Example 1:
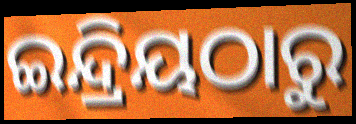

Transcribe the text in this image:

ଇନ୍ଦ୍ରିୟଠାରୁ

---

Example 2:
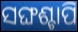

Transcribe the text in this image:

ସଙ୍ଘଶ୍ଚାପି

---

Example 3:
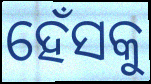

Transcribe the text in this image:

ହେଁସକୁ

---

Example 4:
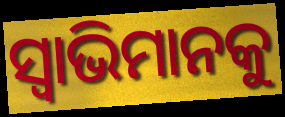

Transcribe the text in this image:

ସ୍ୱାଭିମାନକୁ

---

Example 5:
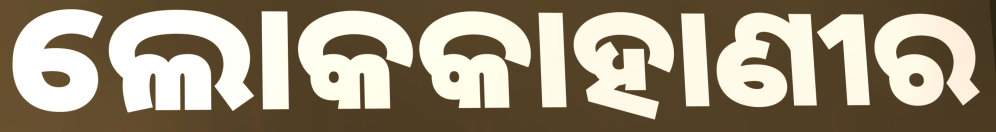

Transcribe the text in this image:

ଲୋକକାହାଣୀର